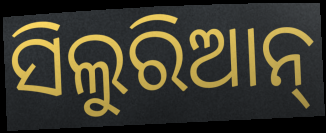
ସିଲୁରିଆନ୍